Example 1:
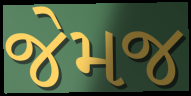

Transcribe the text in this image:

જેમજ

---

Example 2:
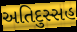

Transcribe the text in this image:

અતિદુસ્સહ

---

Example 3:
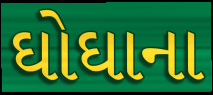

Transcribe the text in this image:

ઘોઘાના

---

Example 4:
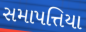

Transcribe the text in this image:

સમાપત્તિયા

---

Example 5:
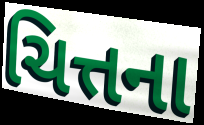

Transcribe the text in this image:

ચિત્તના